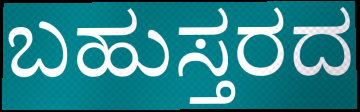
ಬಹುಸ್ತರದ